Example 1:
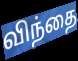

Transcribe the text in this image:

விந்தை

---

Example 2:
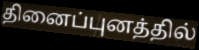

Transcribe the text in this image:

தினைப்புனத்தில்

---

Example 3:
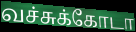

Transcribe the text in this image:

வச்சுக்கோடா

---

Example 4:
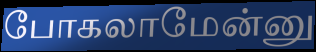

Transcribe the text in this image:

போகலாமேன்னு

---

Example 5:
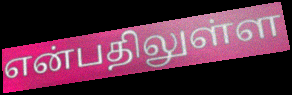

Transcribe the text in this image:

என்பதிலுள்ள